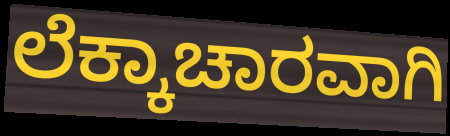
ಲೆಕ್ಕಾಚಾರವಾಗಿ